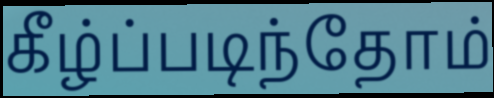
கீழ்ப்படிந்தோம்